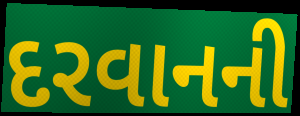
દરવાનની